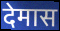
देमास